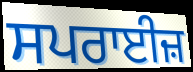
ਸਪਰਾਈਜ਼